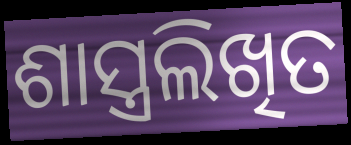
ଶାସ୍ତ୍ରଲିଖିତ